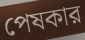
পেষকার